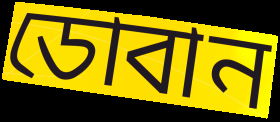
ডোবান